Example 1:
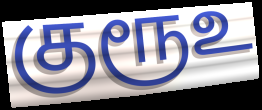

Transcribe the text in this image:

குரூஉ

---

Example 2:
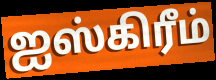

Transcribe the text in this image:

ஐஸ்கிரீம்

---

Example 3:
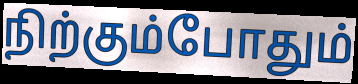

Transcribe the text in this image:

நிற்கும்போதும்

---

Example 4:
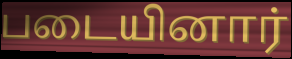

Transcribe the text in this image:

படையினார்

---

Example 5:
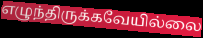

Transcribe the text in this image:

எழுந்திருக்கவேயில்லை